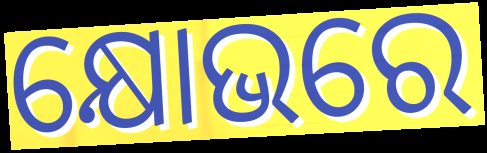
କ୍ଷୋଭରେ